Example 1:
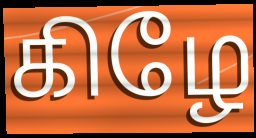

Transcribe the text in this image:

கிழே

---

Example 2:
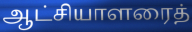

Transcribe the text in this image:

ஆட்சியாளரைத்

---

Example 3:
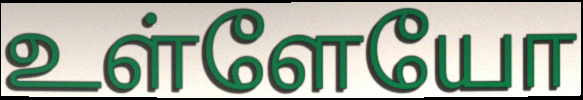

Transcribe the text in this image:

உள்ளேயோ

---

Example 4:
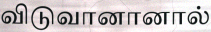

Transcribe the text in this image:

விடுவானானால்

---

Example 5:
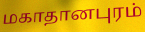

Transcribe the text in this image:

மகாதானபுரம்